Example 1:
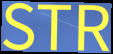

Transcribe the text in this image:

STR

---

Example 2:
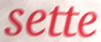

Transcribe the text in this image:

sette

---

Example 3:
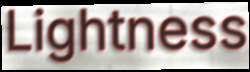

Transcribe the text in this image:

Lightness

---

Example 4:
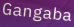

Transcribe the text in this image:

Gangaba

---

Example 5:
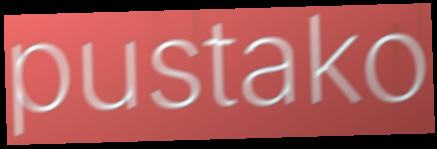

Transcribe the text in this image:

pustako